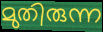
മുതിരുന്ന